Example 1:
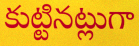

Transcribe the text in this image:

కుట్టినట్లుగా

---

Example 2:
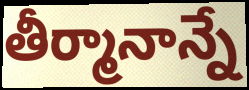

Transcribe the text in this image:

తీర్మానాన్నే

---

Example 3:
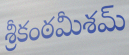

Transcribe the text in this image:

శ్రీకంఠమీశమ్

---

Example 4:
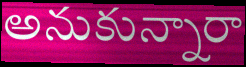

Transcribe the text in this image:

అనుకున్నారా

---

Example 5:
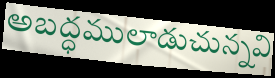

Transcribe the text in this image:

అబద్ధములాడుచున్నవి